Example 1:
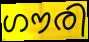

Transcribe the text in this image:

ഗൗരി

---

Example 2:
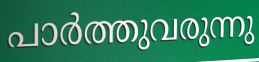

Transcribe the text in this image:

പാർത്തുവരുന്നു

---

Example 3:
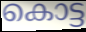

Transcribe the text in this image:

കൊട്ട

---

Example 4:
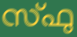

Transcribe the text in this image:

സ്ഫു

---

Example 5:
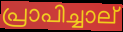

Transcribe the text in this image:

പ്രാപിച്ചാല്